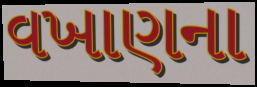
વખાણના